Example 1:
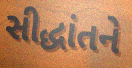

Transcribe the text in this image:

સીદ્ધાંતને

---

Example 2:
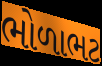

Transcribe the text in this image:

ભોળાભટ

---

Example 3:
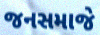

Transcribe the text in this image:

જનસમાજે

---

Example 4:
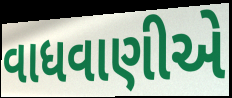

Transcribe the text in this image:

વાધવાણીએ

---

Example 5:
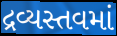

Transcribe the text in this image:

દ્રવ્યસ્તવમાં